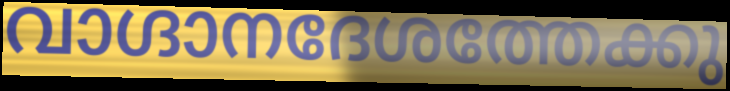
വാഗ്ദാനദേശത്തേക്കു